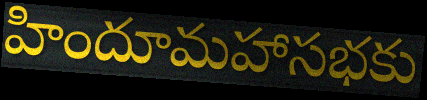
హిందూమహాసభకు